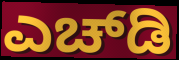
ಎಚ್‍ಡಿ